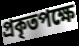
প্রকৃতপক্ষে